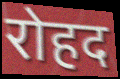
रोहद